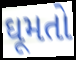
ઘૂમતો